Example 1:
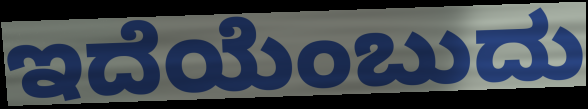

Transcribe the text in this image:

ಇದೆಯೆಂಬುದು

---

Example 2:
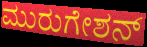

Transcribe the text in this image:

ಮುರುಗೇಶನ್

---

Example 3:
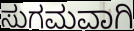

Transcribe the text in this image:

ಸುಗಮವಾಗಿ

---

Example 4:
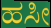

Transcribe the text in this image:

ಹಸೀ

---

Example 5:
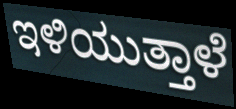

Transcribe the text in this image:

ಇಳಿಯುತ್ತಾಳೆ